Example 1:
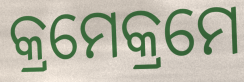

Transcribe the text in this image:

କ୍ରମେକ୍ରମେ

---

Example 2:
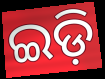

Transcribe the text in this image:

ଇଡ଼ି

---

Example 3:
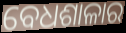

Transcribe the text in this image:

ବେଧଶାଳାର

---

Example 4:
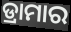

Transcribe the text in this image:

ଡ୍ରାମାର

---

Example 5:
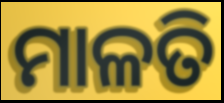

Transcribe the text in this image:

ମାଳତି